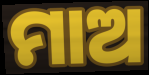
ମାଅ